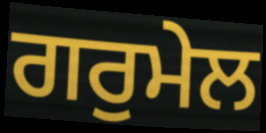
ਗਰੁਮੇਲ